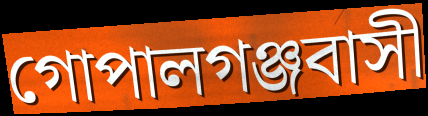
গোপালগঞ্জবাসী